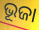
ଭୂଜା